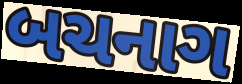
બચનાગ